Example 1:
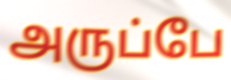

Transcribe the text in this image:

அருப்பே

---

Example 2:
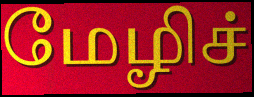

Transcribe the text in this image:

மேழிச்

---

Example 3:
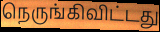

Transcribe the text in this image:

நெருங்கிவிட்டது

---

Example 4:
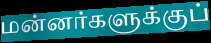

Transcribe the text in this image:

மன்னர்களுக்குப்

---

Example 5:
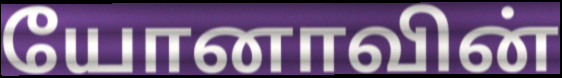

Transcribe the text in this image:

யோனாவின்